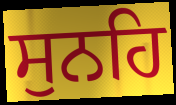
ਸੁਨਹਿ